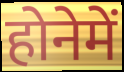
होनेमें